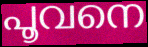
പൂവനെ